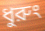
ধুরুং